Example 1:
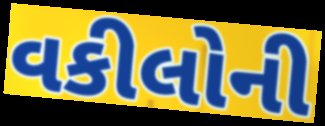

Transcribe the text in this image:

વકીલોની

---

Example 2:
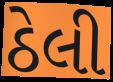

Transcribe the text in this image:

ઠેલી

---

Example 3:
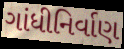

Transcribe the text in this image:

ગાંધીનિર્વાણ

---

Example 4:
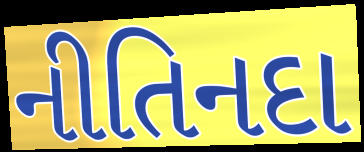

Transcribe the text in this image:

નીતિનદા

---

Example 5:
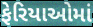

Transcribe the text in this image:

ફેરિયાઓમાં